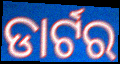
ଡାର୍ଟର